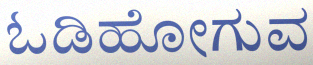
ಓಡಿಹೋಗುವ